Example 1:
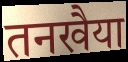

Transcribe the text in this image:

तनखैया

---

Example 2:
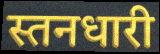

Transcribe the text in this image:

स्तनधारी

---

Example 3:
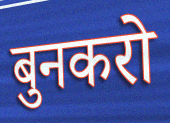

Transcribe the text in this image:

बुनकरो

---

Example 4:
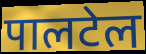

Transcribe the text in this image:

पालटेल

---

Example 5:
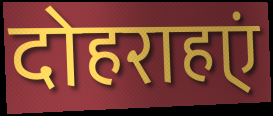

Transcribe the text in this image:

दोहराहएं